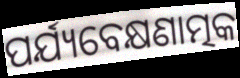
ପର୍ଯ୍ୟବେକ୍ଷଣାତ୍ମକ